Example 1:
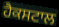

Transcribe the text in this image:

ਹੈਕਸਟਾਲ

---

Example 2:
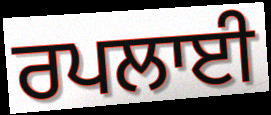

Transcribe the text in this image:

ਰਪਲਾਈ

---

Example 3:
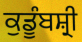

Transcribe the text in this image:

ਕੁਡੂੰਬਸ਼੍ਰੀ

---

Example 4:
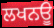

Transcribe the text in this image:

ਲਖਨਊ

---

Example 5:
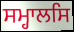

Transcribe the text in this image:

ਸਮ੍ਹ੍ਹਾਲਸਿ